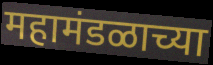
महामंडळाच्या